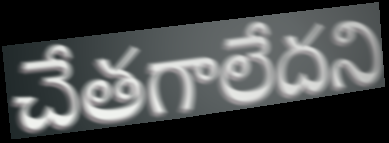
చేతగాలేదని